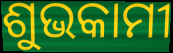
ଶୁଭକାମୀ